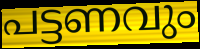
പട്ടണവും